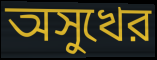
অসুখের